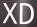
XD